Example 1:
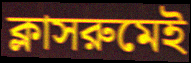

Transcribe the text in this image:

ক্লাসরুমেই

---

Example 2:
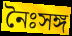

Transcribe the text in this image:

নৈঃসঙ্গ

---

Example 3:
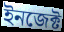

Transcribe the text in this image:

ইনজেক্ট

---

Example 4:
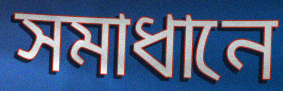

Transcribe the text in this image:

সমাধানে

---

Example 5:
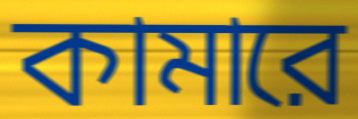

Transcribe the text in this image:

কামারে